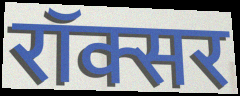
रॉक्सर